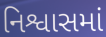
નિશ્વાસમાં